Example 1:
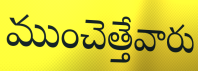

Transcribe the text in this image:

ముంచెత్తేవారు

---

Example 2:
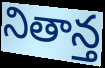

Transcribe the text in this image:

నితాన్త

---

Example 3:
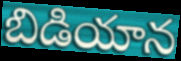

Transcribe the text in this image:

బిడియాన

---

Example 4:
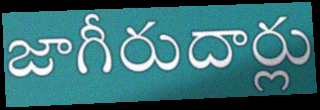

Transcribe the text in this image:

జాగీరుదార్లు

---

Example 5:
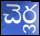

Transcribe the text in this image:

చెర్ల